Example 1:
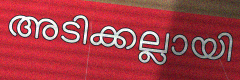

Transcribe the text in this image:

അടിക്കല്ലായി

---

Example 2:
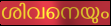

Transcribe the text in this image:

ശിവനെയും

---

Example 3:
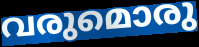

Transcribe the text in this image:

വരുമൊരു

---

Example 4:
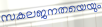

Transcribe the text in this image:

സകലജനതയെയും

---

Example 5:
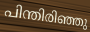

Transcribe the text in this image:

പിന്തിരിഞ്ഞു